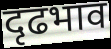
दृढभाव